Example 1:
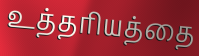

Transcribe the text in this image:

உத்தரியத்தை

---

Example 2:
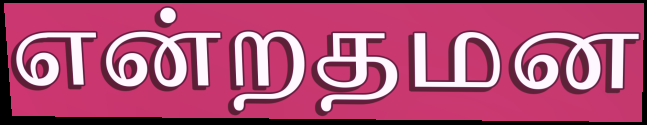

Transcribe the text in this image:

என்றதமன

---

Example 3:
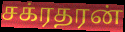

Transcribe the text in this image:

சக்ரதரன்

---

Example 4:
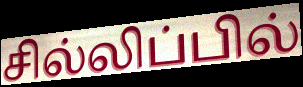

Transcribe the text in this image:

சில்லிப்பில்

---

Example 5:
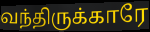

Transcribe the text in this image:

வந்திருக்காரே